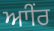
ਆੀਂਰ